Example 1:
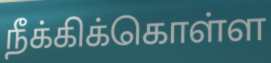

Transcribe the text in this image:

நீக்கிக்கொள்ள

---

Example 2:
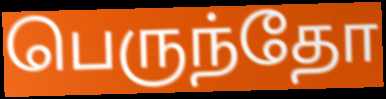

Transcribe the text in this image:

பெருந்தோ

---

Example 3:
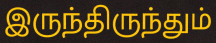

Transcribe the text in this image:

இருந்திருந்தும்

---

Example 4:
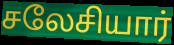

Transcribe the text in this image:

சலேசியார்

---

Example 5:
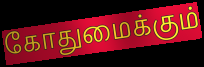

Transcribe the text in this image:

கோதுமைக்கும்